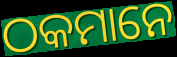
ଠକମାନେ